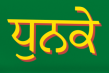
ਧੁਨਕੇ